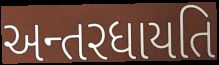
અન્તરધાયતિ